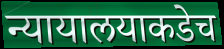
न्यायालयाकडेच